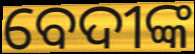
ବେଦୀଙ୍କ